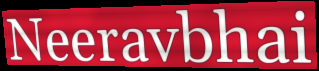
Neeravbhai